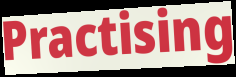
Practising